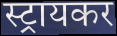
स्ट्रायकर